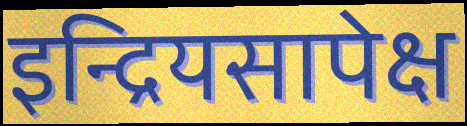
इन्द्रियसापेक्ष